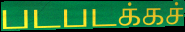
படபடக்கச்